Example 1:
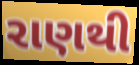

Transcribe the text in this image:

રાણથી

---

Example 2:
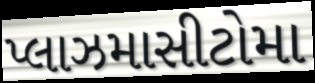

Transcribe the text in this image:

પ્લાઝમાસીટોમા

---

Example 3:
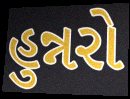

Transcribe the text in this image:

હુન્નરો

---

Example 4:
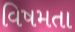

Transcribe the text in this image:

વિષમતા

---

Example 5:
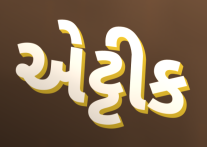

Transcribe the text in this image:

એટ્ટીક